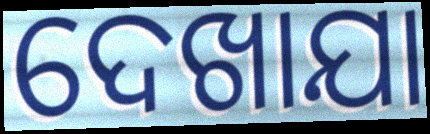
ଦେଖାଯା